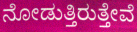
ನೋಡುತ್ತಿರುತ್ತೇವೆ